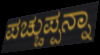
ಪಚ್ಚುಪ್ಪನ್ನಾ